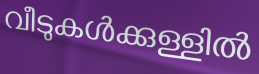
വീടുകൾക്കുള്ളിൽ